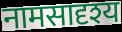
नामसादृश्य